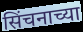
सिंचनाच्या